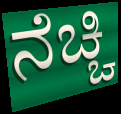
ನೆಚ್ಚಿ